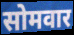
सोमवार